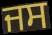
ਜਸ